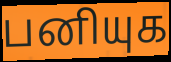
பனியுக